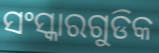
ସଂସ୍କାରଗୁଡିକ